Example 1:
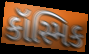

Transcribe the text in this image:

કૉસ્મિક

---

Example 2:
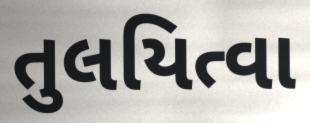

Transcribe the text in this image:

તુલયિત્વા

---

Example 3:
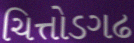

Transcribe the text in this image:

ચિત્તોડગઢ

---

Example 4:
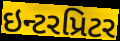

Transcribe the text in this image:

ઇન્ટરપ્રિટર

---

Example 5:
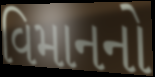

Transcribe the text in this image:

વિમાનનો